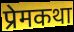
प्रेमकथा